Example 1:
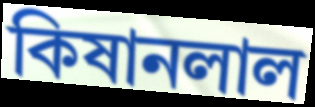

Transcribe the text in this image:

কিষানলাল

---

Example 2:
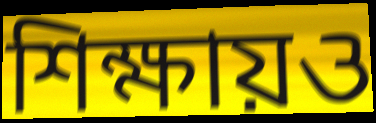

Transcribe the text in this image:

শিক্ষায়ও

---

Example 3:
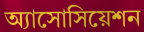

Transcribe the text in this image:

অ্যাসোসিয়েশন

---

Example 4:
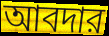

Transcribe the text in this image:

আবদার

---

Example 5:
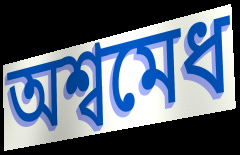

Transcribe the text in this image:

অশ্বমেধ